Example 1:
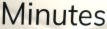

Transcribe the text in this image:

Minutes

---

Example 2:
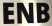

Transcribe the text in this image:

ENB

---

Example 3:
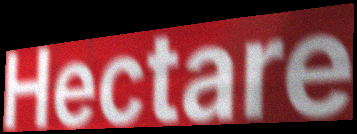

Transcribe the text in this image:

Hectare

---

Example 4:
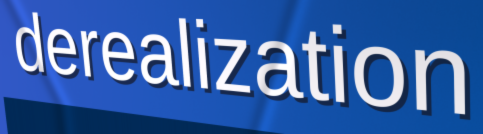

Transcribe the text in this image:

derealization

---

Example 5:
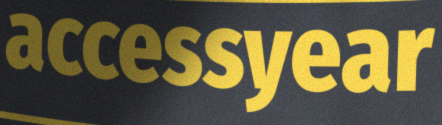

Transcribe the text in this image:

accessyear